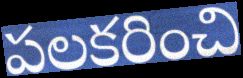
పలకరించి